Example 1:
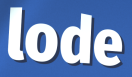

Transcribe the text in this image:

lode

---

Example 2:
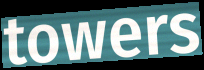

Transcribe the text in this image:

towers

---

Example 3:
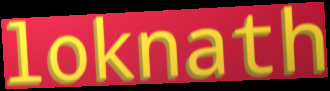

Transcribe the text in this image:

loknath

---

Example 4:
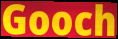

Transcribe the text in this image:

Gooch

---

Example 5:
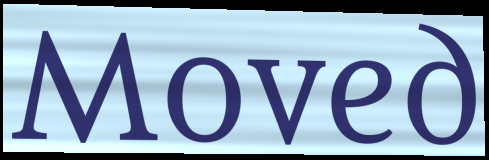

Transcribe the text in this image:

Moved